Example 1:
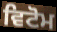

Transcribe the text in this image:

ਵਿਟੋਮ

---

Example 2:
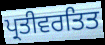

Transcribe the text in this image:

ਪ੍ਰਤੀਵਰਤਿਤ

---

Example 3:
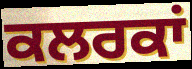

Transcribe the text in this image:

ਕਲਰਕਾਂ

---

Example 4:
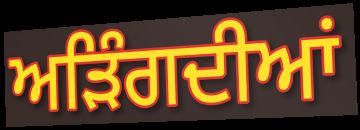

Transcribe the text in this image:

ਅੜਿੰਗਦੀਆਂ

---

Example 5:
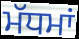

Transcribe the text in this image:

ਮੱਧਮਾਂ